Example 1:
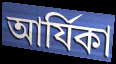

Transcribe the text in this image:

আর্যিকা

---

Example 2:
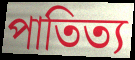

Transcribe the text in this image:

পাতিত্য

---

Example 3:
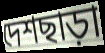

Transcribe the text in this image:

দেশছাড়া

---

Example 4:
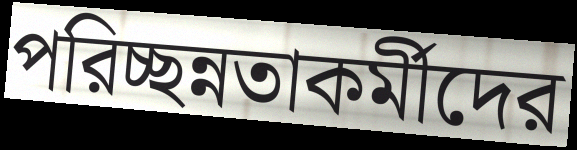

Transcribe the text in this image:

পরিচ্ছন্নতাকর্মীদের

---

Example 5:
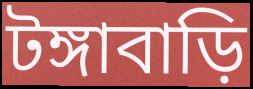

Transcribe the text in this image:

টঙ্গাবাড়ি